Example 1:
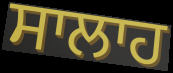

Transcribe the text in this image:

ਸਾਲਾਹ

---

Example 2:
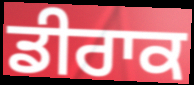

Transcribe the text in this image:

ਡੀਰਾਕ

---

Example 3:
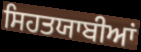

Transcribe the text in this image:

ਸਿਹਤਯਾਬੀਆਂ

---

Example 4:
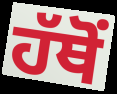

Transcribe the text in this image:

ਹੱਥੋਂ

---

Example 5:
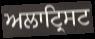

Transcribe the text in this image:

ਅਲਾਟ੍ਰਿਸਟ